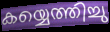
കയ്യെത്തിച്ചു